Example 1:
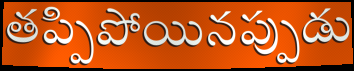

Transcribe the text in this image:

తప్పిపోయినప్పుడు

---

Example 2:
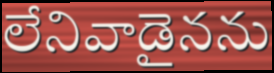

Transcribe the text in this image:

లేనివాడైనను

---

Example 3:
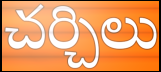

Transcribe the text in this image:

చర్చిలు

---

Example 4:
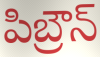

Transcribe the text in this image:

పిబ్రౌన్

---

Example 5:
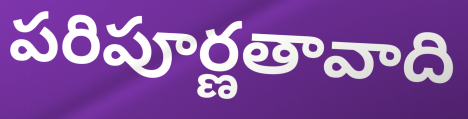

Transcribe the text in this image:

పరిపూర్ణతావాది